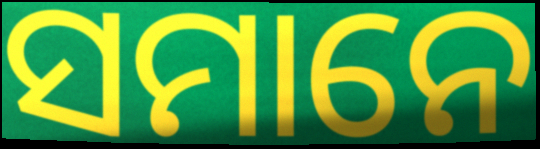
ସମାନେ